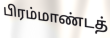
பிரம்மாண்டத்